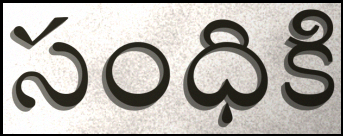
సంధికి